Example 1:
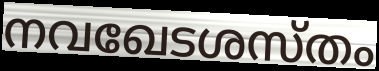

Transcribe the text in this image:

നവഖേടശസ്തം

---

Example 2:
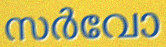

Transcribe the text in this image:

സർവോ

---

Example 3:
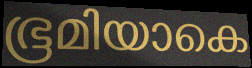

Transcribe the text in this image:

ഭൂമിയാകെ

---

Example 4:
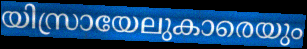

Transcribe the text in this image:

യിസ്രായേലുകാരെയും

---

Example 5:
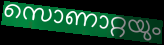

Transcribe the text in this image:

സൊണാറ്റയും